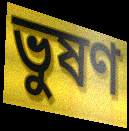
ভুষণ